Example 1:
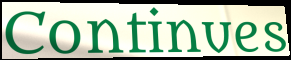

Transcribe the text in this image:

Continues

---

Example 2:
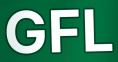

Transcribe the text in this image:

GFL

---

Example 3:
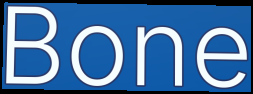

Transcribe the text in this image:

Bone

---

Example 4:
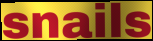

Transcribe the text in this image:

snails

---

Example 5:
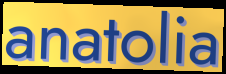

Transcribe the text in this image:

anatolia